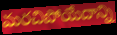
మరచిపోయేదాన్ని